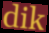
dik